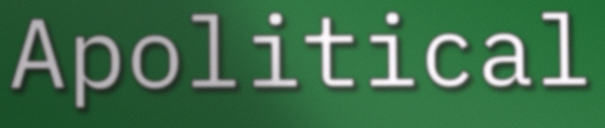
Apolitical